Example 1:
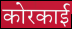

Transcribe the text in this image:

कोरकाई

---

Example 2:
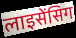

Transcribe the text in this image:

लाइसेंसिग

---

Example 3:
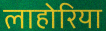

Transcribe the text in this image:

लाहोरिया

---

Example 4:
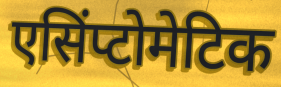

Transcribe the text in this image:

एसिंप्टोमेटिक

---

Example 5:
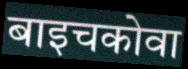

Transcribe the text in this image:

बाइचकोवा